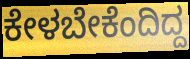
ಕೇಳಬೇಕೆಂದಿದ್ದ